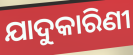
ଯାଦୁକାରିଣୀ